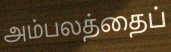
அம்பலத்தைப்